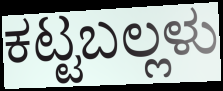
ಕಟ್ಟಬಲ್ಲಳು